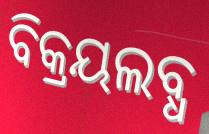
ବିକ୍ରୟଲବ୍ଧ